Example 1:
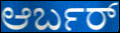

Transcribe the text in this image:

ಆರ್ಬರ್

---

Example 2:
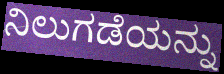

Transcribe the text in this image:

ನಿಲುಗಡೆಯನ್ನು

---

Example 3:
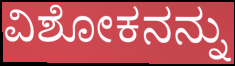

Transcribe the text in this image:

ವಿಶೋಕನನ್ನು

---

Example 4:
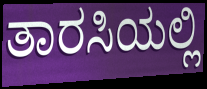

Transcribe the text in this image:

ತಾರಸಿಯಲ್ಲಿ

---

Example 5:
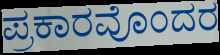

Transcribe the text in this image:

ಪ್ರಕಾರವೊಂದರ